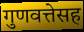
गुणवत्तेसह